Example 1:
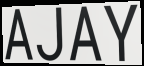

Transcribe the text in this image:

AJAY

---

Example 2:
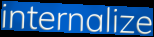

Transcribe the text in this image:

internalize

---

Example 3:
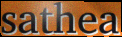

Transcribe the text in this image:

sathea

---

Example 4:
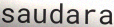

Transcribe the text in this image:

saudara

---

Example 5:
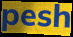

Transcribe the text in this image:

pesh